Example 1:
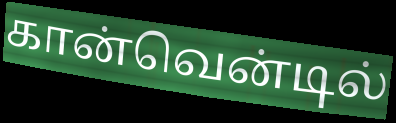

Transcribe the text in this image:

கான்வென்டில்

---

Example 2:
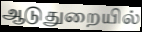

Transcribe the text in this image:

ஆடுதுறையில்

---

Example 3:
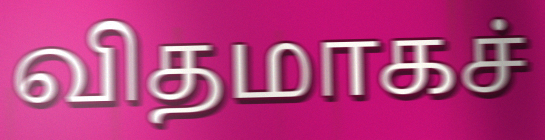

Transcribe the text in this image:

விதமாகச்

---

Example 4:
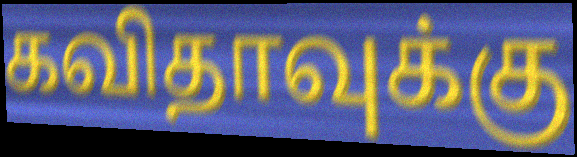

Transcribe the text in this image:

கவிதாவுக்கு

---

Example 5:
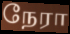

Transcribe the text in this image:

நேரா